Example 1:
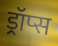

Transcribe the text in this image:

ड्रॉप्‍स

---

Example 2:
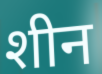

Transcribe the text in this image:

शीन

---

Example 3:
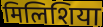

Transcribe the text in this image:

मिलिशिया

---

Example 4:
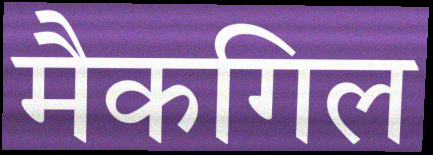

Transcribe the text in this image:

मैकगिल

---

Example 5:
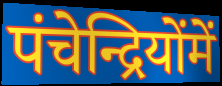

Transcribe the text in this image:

पंचेन्द्रियोंमें